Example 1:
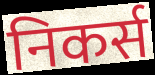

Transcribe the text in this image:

निकर्स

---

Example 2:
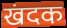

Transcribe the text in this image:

खंदक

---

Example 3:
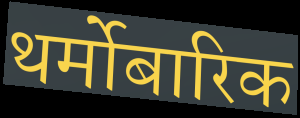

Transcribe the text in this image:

थर्मोबारिक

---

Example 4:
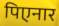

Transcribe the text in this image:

पिएनार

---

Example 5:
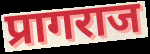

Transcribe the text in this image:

प्रागराज